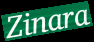
Zinara